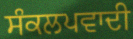
ਸੰਕਲਪਵਾਦੀ